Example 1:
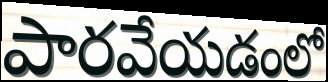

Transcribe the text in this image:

పారవేయడంలో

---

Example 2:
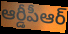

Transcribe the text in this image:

ఆర్డీపీఆర్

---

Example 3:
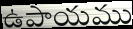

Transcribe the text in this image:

ఉపాయము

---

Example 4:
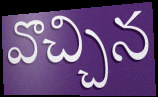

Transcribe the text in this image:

వొచ్చిన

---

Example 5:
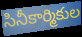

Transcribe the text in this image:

సినీకార్మికుల